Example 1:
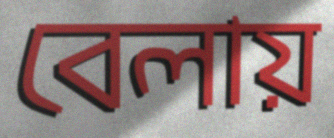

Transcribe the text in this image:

বেলায়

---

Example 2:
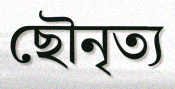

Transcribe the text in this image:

ছৌনৃত্য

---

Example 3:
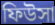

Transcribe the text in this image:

ফিউসা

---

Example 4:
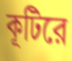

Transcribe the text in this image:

কূটিরে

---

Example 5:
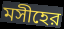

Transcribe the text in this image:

মসীহের